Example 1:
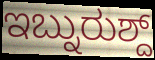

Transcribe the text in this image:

ಇಬ್ನುರುಶ್ದ್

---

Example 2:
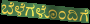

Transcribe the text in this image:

ಬೆಳೆಗಳೊಂದಿಗೆ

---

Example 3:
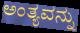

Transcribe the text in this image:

ಅಂತ್ಯವನ್ನು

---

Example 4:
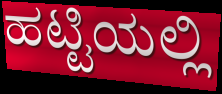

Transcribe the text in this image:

ಹಟ್ಟಿಯಲ್ಲಿ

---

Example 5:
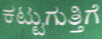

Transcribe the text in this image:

ಕಟ್ಟುಗುತ್ತಿಗೆ